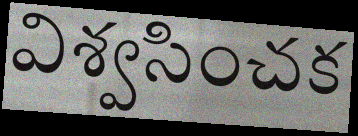
విశ్వసించక